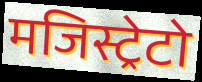
मजिस्ट्रेटो